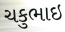
ચકુભાઇ